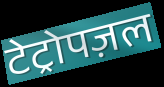
टेट्रोपज़ल